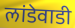
लांडेवाडी